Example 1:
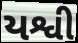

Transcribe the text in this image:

યશ્વી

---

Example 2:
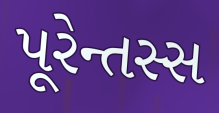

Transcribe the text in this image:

પૂરેન્તસ્સ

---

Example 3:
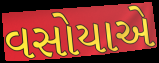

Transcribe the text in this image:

વસોયાએ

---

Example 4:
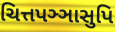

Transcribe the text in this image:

ચિત્તપઞ્ઞાસુપિ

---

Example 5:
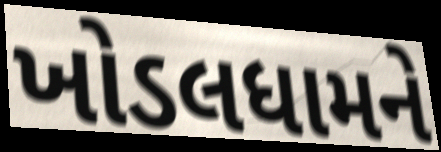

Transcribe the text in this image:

ખોડલધામને